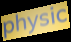
physic